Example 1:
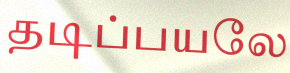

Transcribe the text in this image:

தடிப்பயலே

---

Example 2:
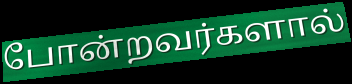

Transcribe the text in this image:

போன்றவர்களால்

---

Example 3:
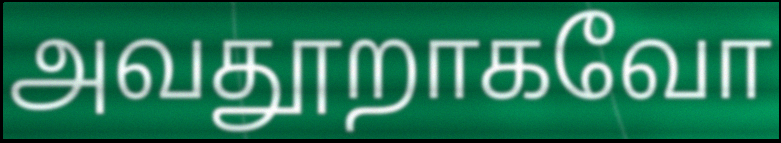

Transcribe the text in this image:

அவதூறாகவோ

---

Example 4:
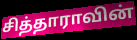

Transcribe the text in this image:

சித்தாராவின்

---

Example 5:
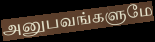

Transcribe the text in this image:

அனுபவங்களுமே